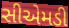
સીએમડી